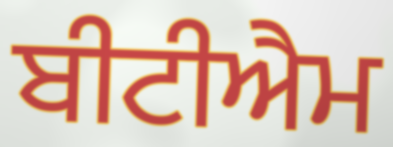
ਬੀਟੀਐਮ